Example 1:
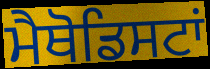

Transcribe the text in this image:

ਮੈਥੋਡਿਸਟਾਂ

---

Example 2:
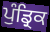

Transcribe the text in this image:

ਪੁੰਡ੍ਰਿਕ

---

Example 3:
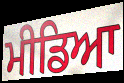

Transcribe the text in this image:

ਮੀਡਿਆ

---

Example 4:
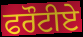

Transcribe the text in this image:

ਫਰੌਟੀਏ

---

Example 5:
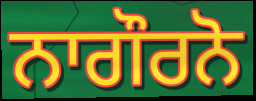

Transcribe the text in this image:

ਨਾਗੌਰਨੋ